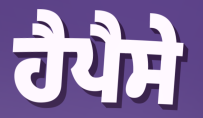
ਹੈਪੈਸੇ